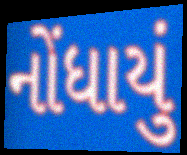
નોંધાયું